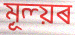
মূল্য়ৰ